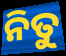
ନିତୁ